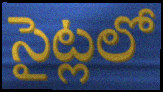
సైట్లలో